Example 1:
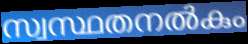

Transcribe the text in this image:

സ്വസ്ഥതനൽകും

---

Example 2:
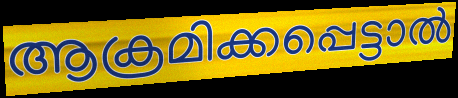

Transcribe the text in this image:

ആക്രമിക്കപ്പെട്ടാൽ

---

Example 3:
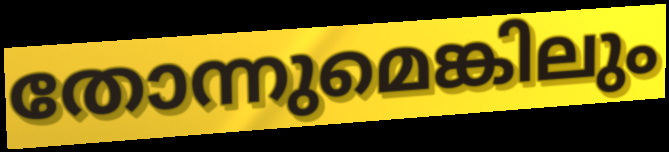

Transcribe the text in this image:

തോന്നുമെങ്കിലും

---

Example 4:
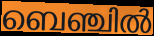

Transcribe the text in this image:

ബെഞ്ചിൽ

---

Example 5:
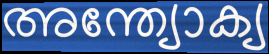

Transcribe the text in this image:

അന്ത്യോക്യ